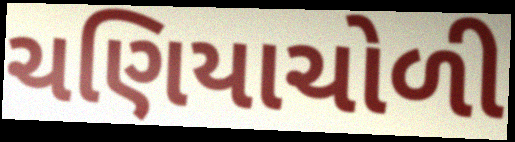
ચણિયાચોળી